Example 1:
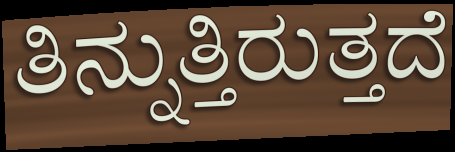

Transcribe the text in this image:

ತಿನ್ನುತ್ತಿರುತ್ತದೆ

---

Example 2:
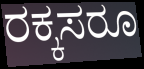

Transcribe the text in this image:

ರಕ್ಕಸರೂ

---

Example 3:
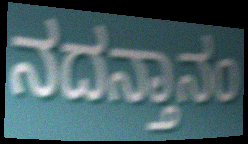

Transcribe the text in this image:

ನದನ್ತಾನಂ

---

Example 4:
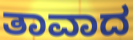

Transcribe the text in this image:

ತಾವಾದ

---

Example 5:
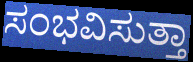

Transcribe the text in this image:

ಸಂಭವಿಸುತ್ತಾ